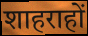
शाहराहों